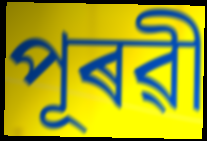
পূৰৱী